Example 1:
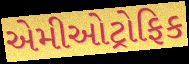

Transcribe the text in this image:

એમીઓટ્રોફિક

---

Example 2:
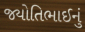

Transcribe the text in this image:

જ્યોતિભાઈનું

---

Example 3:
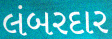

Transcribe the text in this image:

લંબરદાર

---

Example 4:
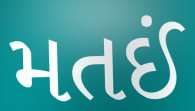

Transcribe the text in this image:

મતઈં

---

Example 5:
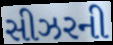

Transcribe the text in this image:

સીઝરની